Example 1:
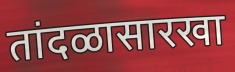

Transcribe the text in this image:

तांदळासारखा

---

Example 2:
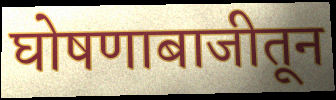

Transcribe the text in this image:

घोषणाबाजीतून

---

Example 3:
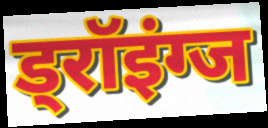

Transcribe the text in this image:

ड्रॉइंग्ज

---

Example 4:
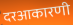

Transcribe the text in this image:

दरआकारणी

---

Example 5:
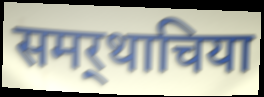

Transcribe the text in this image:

समर्थाचिया